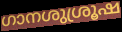
ഗാനശുശ്രൂഷ